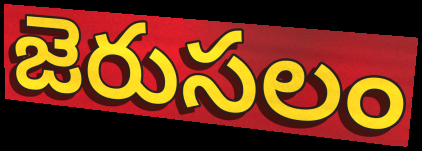
జెరుసలం